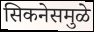
सिकनेसमुळे